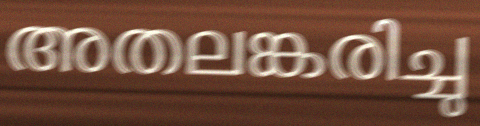
അതലങ്കരിച്ചു